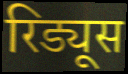
रिड्यूस